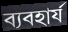
ব্যবহার্য